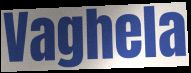
Vaghela